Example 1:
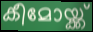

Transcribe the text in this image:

കീമോയ്ക്ക്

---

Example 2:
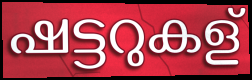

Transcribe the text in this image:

ഷട്ടറുകള്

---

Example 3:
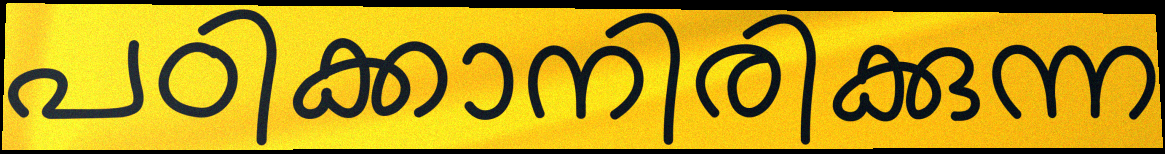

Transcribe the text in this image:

പഠിക്കാനിരിക്കുന്ന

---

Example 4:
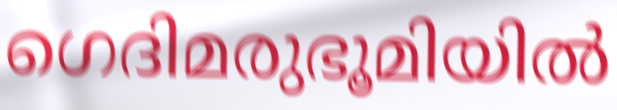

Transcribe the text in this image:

ഗെദിമരുഭൂമിയിൽ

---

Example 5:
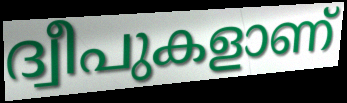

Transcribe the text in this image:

ദ്വീപുകളാണ്